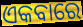
ଏକବାରେ